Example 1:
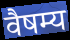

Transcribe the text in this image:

वैषम्य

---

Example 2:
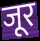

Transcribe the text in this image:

जूर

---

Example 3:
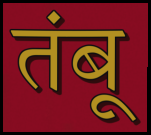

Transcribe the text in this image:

तंबू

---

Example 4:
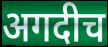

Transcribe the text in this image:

अगदीच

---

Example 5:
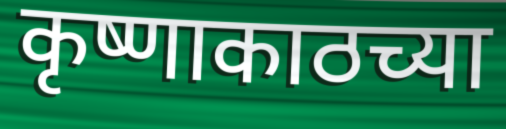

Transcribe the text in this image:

कृष्णाकाठच्या